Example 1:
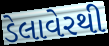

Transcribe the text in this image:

ડેલાવેરથી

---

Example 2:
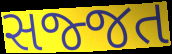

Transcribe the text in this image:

સજ્જત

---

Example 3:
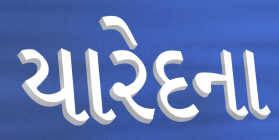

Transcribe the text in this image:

યારેદના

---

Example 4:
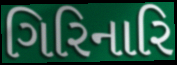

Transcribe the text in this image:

ગિરિનારિ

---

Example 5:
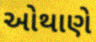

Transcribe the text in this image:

ઓથાણે